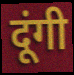
दूंगी